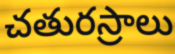
చతురస్రాలు